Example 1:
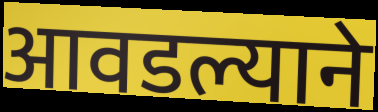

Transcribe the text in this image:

आवडल्याने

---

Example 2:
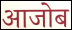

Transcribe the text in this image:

आजोब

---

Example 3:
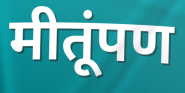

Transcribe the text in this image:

मीतूंपण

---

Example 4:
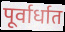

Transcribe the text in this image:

पूर्वार्धात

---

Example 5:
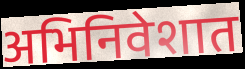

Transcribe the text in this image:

अभिनिवेशात